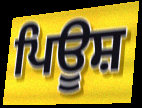
ਪਿਊਸ਼